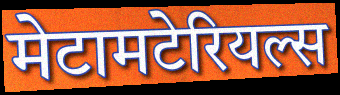
मेटामटेरियल्स